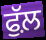
ਫੁੱਲ਼